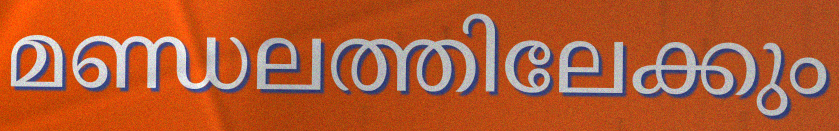
മണ്ഡലത്തിലേക്കും